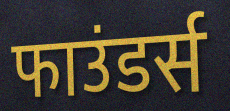
फाउंडर्स